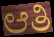
ಆತಿ